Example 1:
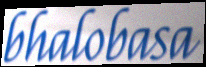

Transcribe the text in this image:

bhalobasa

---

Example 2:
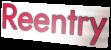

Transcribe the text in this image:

Reentry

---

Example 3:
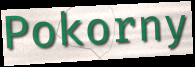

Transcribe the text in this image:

Pokorny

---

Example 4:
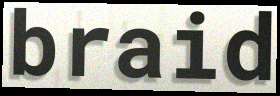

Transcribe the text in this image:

braid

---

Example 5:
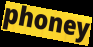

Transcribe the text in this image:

phoney